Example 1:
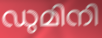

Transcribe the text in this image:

ഡുമിനി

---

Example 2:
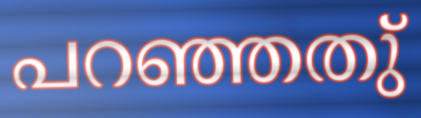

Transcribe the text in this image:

പറഞ്ഞതു്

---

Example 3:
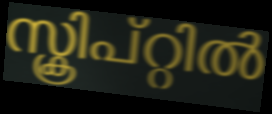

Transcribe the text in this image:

സ്ക്രിപ്റ്റിൽ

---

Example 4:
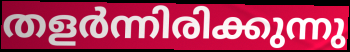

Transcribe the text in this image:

തളർന്നിരിക്കുന്നു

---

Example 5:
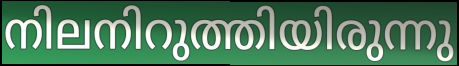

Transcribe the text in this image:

നിലനിറുത്തിയിരുന്നു